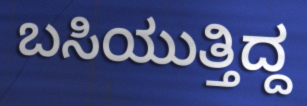
ಬಸಿಯುತ್ತಿದ್ದ